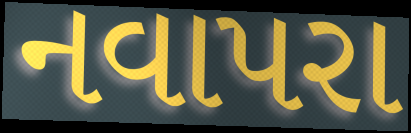
નવાપરા